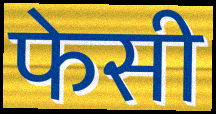
फेसी